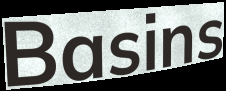
Basins